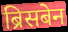
ब्रिसबेन